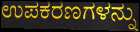
ಉಪಕರಣಗಳನ್ನು